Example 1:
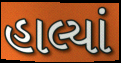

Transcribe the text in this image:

હાલ્યાં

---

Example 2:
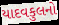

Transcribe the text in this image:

યાદવકુલનો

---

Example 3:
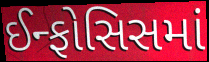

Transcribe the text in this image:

ઈન્ફોસિસમાં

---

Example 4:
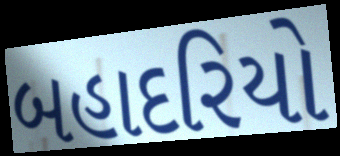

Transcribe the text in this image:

બહાદરિયો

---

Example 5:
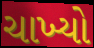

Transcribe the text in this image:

ચાખ્યો